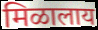
मिळालाय